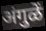
अंगुळें